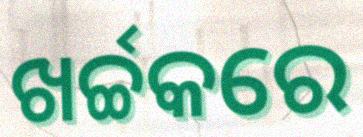
ଖର୍ଚ୍ଚକରେ